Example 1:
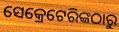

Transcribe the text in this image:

ସେକ୍ରେଟେରିଙ୍କଠାରୁ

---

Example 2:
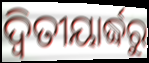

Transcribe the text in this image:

ଦ୍ଵିତୀୟାର୍ଦ୍ଧରୁ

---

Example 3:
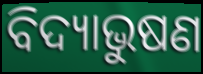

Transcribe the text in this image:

ବିଦ୍ୟାଭୁଷଣ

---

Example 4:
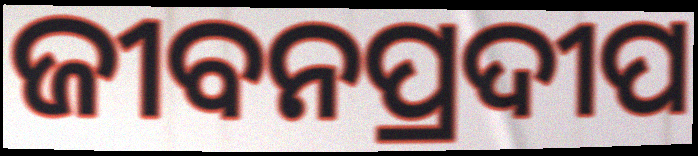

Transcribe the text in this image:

ଜୀବନପ୍ରଦୀପ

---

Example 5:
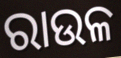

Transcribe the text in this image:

ରାଉଳ